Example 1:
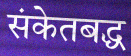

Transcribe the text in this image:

संकेतबद्ध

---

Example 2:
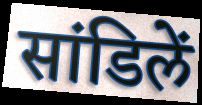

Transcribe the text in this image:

सांडिलें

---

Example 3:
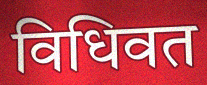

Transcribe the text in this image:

विधिवत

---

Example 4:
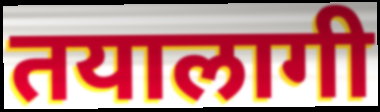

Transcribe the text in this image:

तयालागी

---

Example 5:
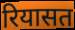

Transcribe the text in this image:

रियासत